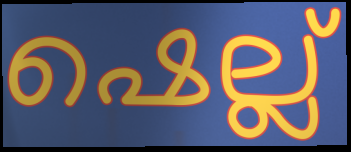
ഷെല്ല്